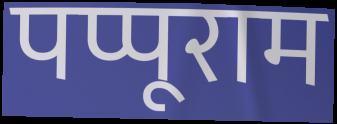
पप्पूराम